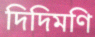
দিদিমণি